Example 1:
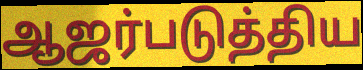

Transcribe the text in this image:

ஆஜர்படுத்திய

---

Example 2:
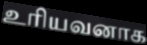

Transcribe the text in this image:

உரியவனாக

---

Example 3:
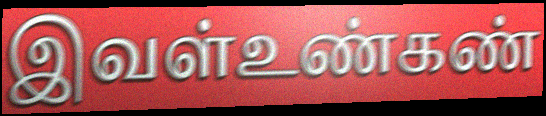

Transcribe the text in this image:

இவள்உண்கண்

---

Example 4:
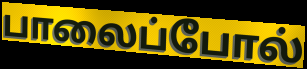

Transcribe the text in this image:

பாலைப்போல்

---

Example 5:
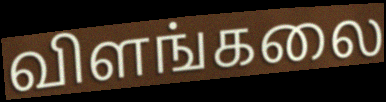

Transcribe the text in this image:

விளங்கலை